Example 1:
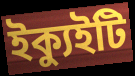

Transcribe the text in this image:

ইক্যুইটি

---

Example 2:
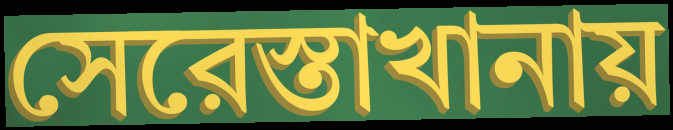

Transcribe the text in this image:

সেরেস্তাখানায়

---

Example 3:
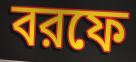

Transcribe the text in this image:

বরফে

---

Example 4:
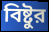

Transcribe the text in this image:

বিষ্টুর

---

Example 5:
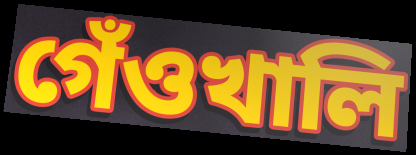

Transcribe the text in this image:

গেঁওখালি